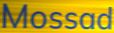
Mossad